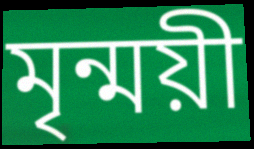
মৃন্ময়ী